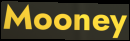
Mooney